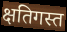
क्षतिगस्त